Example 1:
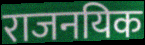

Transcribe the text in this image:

राजनयिक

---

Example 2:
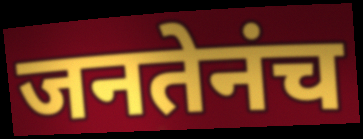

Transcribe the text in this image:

जनतेनंच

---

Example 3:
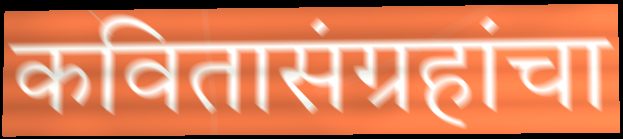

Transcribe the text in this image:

कवितासंग्रहांचा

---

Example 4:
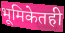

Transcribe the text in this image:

भूमिकेतही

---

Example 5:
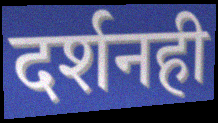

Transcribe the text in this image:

दर्शनही